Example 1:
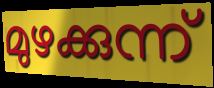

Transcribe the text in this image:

മുഴക്കുന്ന്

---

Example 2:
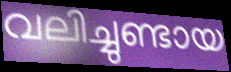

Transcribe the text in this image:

വലിച്ചുണ്ടായ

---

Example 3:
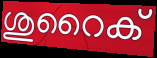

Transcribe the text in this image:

ശുറൈക്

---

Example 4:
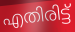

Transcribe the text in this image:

എതിരിട്ട്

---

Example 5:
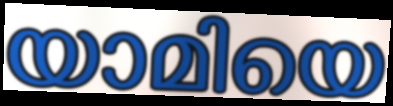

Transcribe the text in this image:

യാമിയെ